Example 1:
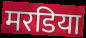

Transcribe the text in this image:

मरडिया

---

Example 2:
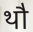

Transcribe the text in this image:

थौ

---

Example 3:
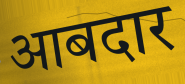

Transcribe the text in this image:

आबदार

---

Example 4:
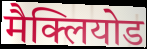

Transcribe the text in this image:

मैक्लियोड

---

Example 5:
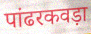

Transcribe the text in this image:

पांढरकवड़ा